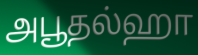
அபூதல்ஹா